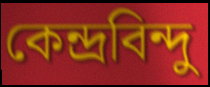
কেন্দ্ৰবিন্দু